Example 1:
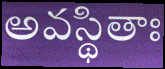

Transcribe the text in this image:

అవస్థితాః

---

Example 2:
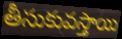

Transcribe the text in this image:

తీసుకువస్తాయి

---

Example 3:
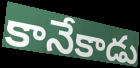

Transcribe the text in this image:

కానేకాడు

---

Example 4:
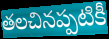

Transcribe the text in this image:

తలచినప్పటికీ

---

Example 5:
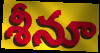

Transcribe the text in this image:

శీనూ